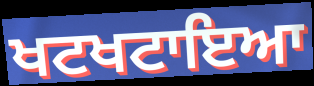
ਖਟਖਟਾਇਆ